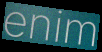
enim